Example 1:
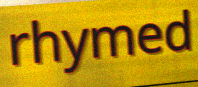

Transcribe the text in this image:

rhymed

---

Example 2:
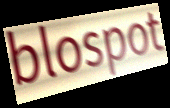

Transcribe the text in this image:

blospot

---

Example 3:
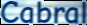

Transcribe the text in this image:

Cabral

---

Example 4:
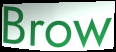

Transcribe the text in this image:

Brow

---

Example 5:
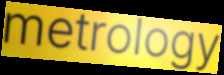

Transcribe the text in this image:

metrology